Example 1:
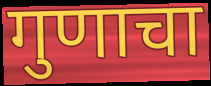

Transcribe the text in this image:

गुणाचा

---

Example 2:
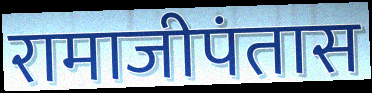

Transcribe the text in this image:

रामाजीपंतास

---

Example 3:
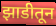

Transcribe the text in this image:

झाडीतून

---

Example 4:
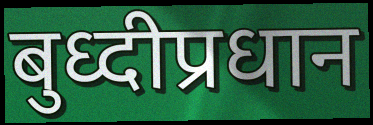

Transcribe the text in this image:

बुध्दीप्रधान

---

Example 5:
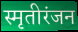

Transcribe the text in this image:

स्मृतीरंजन